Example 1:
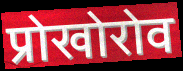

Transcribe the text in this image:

प्रोखोरोव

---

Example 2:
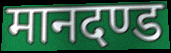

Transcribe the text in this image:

मानदण्ड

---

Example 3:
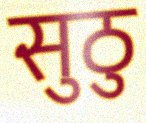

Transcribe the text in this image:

सुठु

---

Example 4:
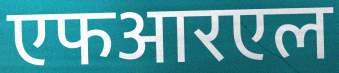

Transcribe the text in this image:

एफआरएल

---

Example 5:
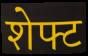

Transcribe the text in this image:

शेफ्ट